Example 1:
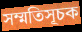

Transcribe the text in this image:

সম্মতিসূচক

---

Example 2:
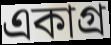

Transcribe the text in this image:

একাগ্র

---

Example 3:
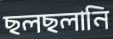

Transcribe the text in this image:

ছলছলানি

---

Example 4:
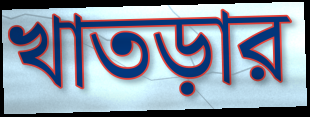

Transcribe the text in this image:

খাতড়ার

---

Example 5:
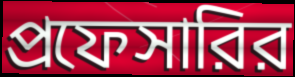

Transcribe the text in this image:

প্রফেসারির